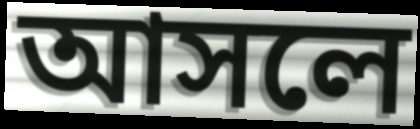
আসলে